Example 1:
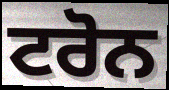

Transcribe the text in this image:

ਟਰੋਨ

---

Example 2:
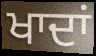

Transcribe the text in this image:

ਖਾਦਾਂ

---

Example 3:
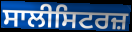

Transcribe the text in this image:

ਸਾਲੀਸਿਟਰਜ਼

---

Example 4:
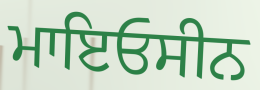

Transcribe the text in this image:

ਮਾਇਓਸੀਨ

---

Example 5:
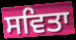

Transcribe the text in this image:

ਸਵਿਤਾ